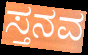
ಸ್ತನವ